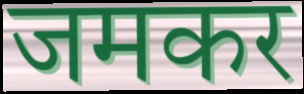
जमकर